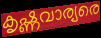
കൃഷ്ണവാര്യരെ